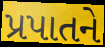
પ્રપાતને